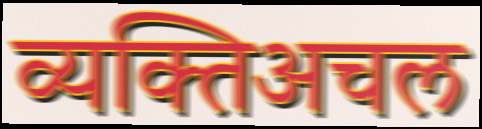
व्यक्तिअचल